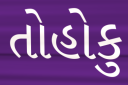
તોહોકુ